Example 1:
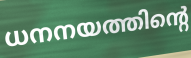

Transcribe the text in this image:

ധനനയത്തിന്റെ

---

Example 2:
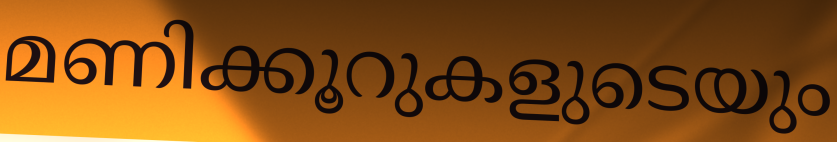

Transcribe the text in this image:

മണിക്കൂറുകളുടെയും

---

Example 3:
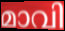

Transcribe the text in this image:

മാവി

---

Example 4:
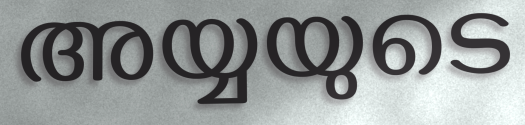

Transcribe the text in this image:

അയ്യയുടെ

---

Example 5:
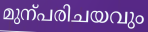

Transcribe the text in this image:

മുന്പരിചയവും